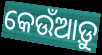
କେଉଁଆଡ଼ୁ